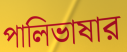
পালিভাষার